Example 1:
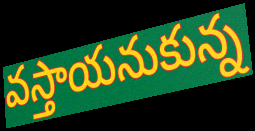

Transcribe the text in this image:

వస్తాయనుకున్న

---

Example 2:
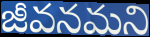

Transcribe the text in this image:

జీవనమని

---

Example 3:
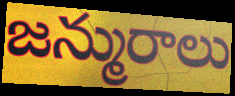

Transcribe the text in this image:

జన్మురాలు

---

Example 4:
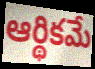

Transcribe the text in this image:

ఆర్థికమే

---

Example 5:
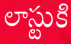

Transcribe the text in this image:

లాస్టుకి